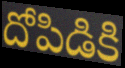
దోపిడికి